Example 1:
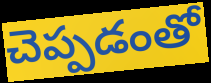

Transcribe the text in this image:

చెప్పడంతో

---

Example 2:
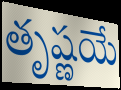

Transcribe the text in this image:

తృష్ణయే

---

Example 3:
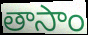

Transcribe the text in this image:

తాసాం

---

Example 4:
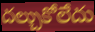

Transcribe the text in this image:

దల్చుకోలేదు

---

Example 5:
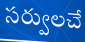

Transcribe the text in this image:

సర్వులచే